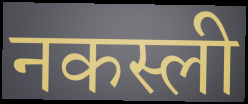
नकस्ली